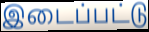
இடைப்பட்டு